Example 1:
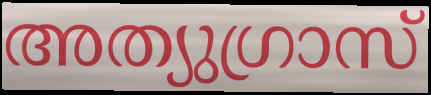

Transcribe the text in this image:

അത്യുഗ്രാസ്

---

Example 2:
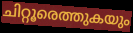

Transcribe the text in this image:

ചിറ്റൂരെത്തുകയും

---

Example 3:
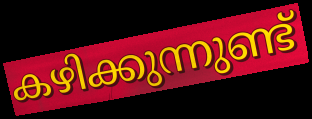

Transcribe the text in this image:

കഴിക്കുന്നുണ്ട്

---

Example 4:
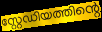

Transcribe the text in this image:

സ്റ്റേഡിയത്തിന്റെ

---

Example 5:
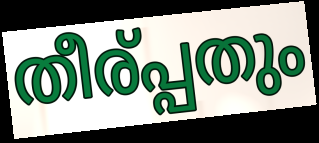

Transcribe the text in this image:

തീര്പ്പതും